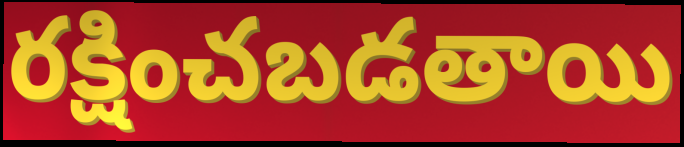
రక్షించబడతాయి